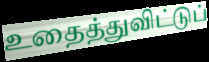
உதைத்துவிட்டுப்